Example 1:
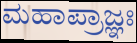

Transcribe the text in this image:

ಮಹಾಪ್ರಾಜ್ಞಃ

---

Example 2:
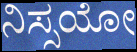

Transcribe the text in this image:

ನಿಸ್ಸಯೋ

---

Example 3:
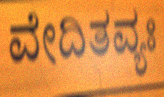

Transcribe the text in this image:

ವೇದಿತವ್ಯಃ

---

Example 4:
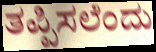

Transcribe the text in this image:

ತಪ್ಪಿಸಲೆಂದು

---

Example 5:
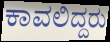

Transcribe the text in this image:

ಕಾವಲಿದ್ದರು